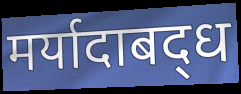
मर्यादाबद्ध